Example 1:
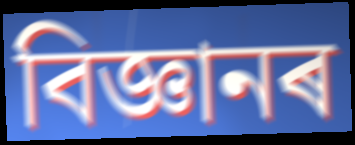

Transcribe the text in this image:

বিজ্ঞানৰ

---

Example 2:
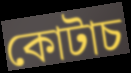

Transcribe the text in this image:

কোটাচ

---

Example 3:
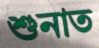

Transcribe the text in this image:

শুনাত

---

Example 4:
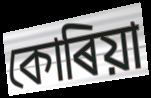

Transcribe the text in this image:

কোৰিয়া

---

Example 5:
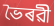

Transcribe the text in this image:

ভৈৰৱী